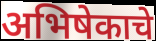
अभिषेकाचे